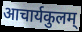
आचार्यकुलम्